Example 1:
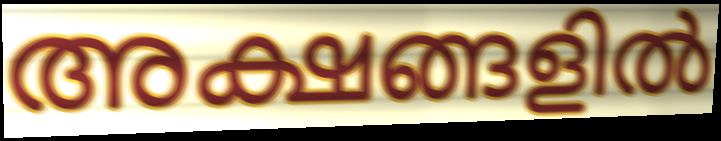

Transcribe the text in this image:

അക്ഷങ്ങളിൽ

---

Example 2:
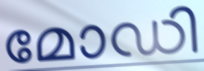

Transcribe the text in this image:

മോഡി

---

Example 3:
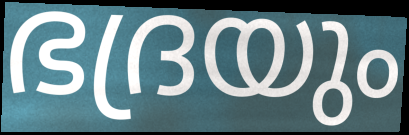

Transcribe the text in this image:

ഭദ്രയും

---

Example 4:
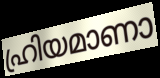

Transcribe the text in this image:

ഹ്രിയമാണാ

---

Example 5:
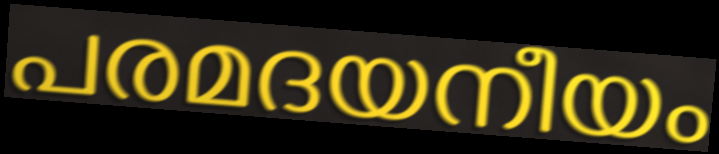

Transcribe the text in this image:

പരമദയനീയം